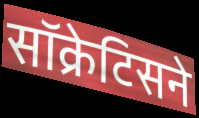
सॉक्रेटिसने